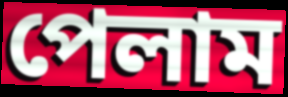
পেলাম